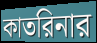
কাতরিনার